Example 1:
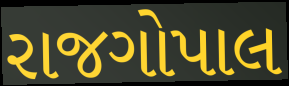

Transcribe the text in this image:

રાજગોપાલ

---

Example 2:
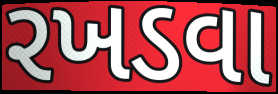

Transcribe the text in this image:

રખડવા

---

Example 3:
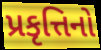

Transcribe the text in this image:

પ્રકૃત્તિનો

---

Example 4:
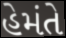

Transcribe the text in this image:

હેમંતે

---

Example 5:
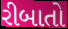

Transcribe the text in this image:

રીબાતો